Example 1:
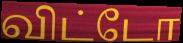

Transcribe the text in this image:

விட்டோ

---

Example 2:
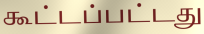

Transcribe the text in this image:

கூட்டப்பட்டது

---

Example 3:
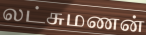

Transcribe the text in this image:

லட்சுமணன்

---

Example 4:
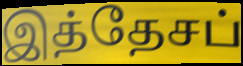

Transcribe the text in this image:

இத்தேசப்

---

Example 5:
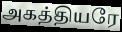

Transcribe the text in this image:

அகத்தியரே